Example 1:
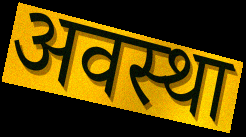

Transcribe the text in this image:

अवस्था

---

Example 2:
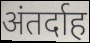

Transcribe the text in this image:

अंतर्दाह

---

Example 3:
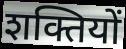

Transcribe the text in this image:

शक्तियों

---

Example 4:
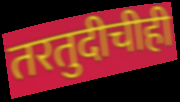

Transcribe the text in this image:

तरतुदीचीही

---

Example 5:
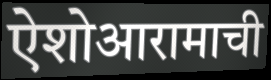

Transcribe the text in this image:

ऐशोआरामाची